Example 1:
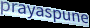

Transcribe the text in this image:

prayaspune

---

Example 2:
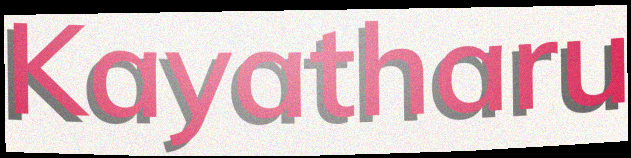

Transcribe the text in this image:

Kayatharu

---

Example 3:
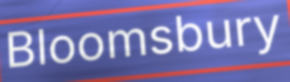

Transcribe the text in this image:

Bloomsbury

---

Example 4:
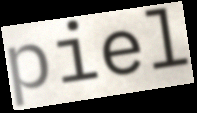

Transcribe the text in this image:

piel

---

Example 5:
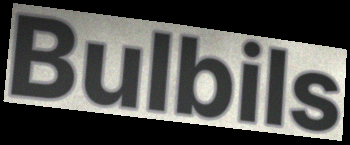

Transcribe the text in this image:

Bulbils